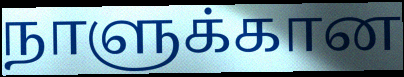
நாளுக்கான